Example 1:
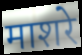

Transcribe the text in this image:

माशरे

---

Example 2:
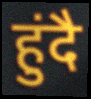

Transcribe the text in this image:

हुंदै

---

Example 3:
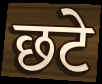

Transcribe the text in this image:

छटे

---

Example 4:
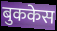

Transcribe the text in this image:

बुककेस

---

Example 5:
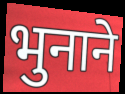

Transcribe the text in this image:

भुनाने